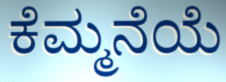
ಕೆಮ್ಮನೆಯೆ